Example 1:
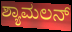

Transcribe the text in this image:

ಶ್ಯಾಮಲನ್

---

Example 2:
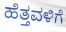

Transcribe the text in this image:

ಹೆತ್ತವಳಿಗೆ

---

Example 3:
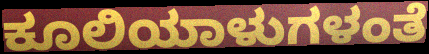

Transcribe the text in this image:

ಕೂಲಿಯಾಳುಗಳಂತೆ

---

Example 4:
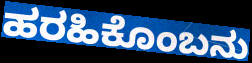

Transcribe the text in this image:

ಹರಹಿಕೊಂಬನು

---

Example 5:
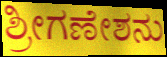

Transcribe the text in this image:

ಶ್ರೀಗಣೇಶನು